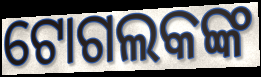
ଟୋଗଲକଙ୍କ